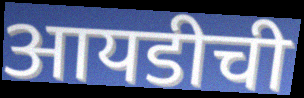
आयडीची